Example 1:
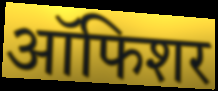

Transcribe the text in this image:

ऑफिशर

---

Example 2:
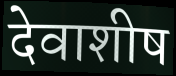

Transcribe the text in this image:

देवाशीष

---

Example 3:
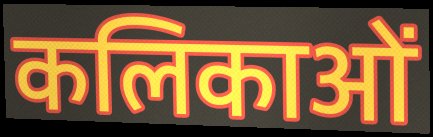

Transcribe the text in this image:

कलिकाओं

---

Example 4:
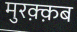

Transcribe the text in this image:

मुरक़्क़ब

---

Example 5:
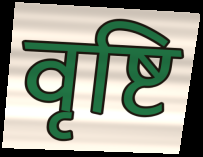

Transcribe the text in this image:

वृष्टि